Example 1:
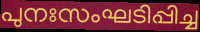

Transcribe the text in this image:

പുനഃസംഘടിപ്പിച്ച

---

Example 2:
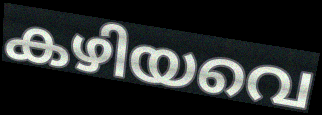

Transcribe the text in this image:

കഴിയവെ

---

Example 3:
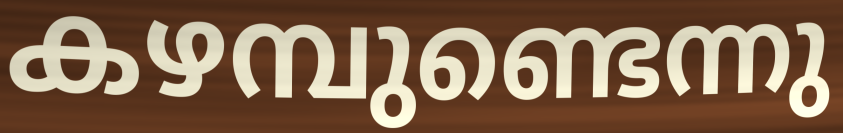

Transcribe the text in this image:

കഴമ്പുണ്ടെന്നു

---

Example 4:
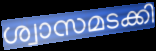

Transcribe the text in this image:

ശ്വാസമടക്കി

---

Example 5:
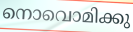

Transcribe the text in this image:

നൊവൊമിക്കു